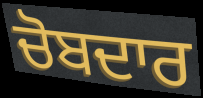
ਚੋਬਦਾਰ